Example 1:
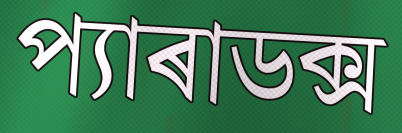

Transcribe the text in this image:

প্যাৰাডক্স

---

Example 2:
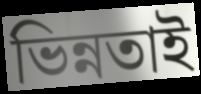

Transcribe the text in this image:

ভিন্নতাই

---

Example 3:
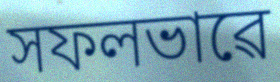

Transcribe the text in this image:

সফলভাৱে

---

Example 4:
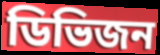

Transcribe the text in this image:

ডিভিজন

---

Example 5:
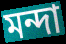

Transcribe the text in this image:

মন্দা